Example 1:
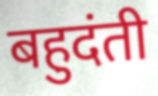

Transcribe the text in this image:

बहुदंती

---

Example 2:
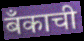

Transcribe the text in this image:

बँकाची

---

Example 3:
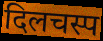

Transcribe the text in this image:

दिलचस्प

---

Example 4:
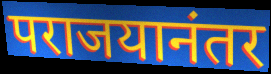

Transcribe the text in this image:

पराजयानंतर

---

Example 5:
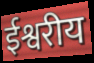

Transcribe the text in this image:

ईश्वरीय